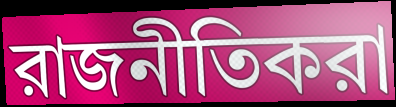
রাজনীতিকরা